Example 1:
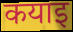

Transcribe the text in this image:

कयाइ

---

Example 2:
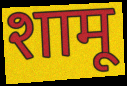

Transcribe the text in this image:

शामू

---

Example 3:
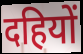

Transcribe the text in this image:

दहियों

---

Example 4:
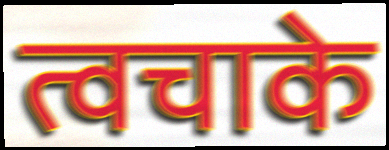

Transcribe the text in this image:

त्वचाके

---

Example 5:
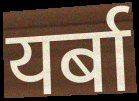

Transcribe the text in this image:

यर्बा